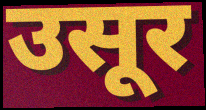
उसूर